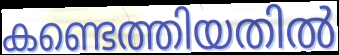
കണ്ടെത്തിയതിൽ